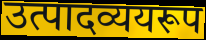
उत्पादव्ययरूप